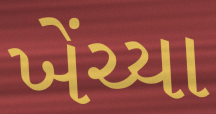
ખેંચ્યા